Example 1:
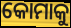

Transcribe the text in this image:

କୋମାକୁ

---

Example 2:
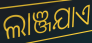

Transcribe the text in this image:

ଲାଞ୍ଜଯାଏ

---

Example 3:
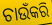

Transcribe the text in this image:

ଚାଉଁକରି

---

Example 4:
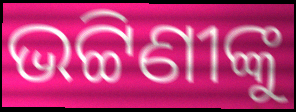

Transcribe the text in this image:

ଭଟ୍ଟିଣୀଙ୍କୁ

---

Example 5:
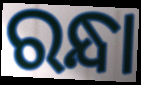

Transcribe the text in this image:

ରନ୍ଧା